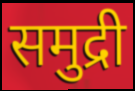
समुद्री